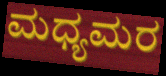
ಮಧ್ಯಮರ